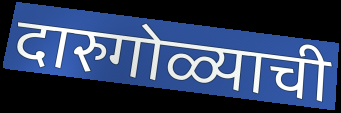
दारुगोळ्याची